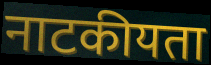
नाटकीयता